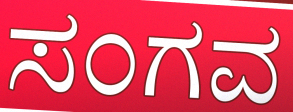
ಸಂಗವ